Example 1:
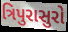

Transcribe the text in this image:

ત્રિપુરાસુરો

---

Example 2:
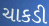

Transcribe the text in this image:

ચાકડી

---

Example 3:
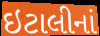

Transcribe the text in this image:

ઇટાલીનાં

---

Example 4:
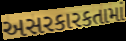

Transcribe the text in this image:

અસરકારકતામાં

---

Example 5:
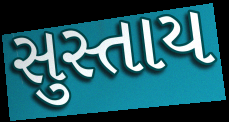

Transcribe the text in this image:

સુસ્તાય